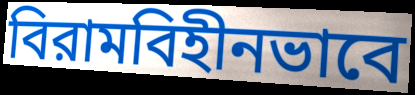
বিরামবিহীনভাবে